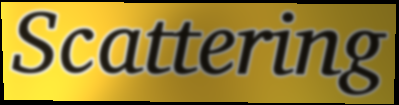
Scattering